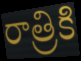
రాత్రికి